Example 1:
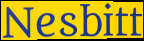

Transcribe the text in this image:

Nesbitt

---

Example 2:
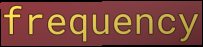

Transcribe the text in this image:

frequency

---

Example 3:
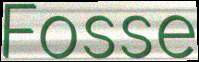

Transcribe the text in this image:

Fosse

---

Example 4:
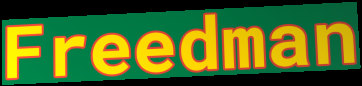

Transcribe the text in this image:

Freedman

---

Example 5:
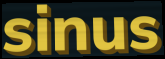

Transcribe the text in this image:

sinus